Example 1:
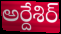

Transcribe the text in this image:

అర్దేశిర్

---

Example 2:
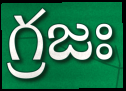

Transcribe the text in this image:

గ్రజః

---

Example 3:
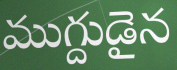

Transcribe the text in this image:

ముగ్దుడైన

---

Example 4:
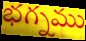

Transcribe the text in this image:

భగ్నము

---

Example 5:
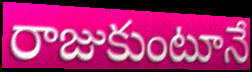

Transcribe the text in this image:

రాజుకుంటూనే